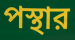
পস্থার